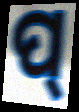
ପ୍